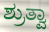
ಶ್ರುತ್ವಾ